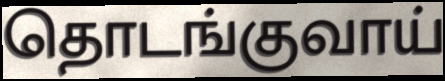
தொடங்குவாய்